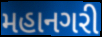
મહાનગરી